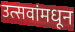
उत्सवांमधून